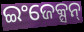
ଇଂଜେକ୍ସନ୍